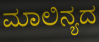
ಮಾಲಿನ್ಯದ